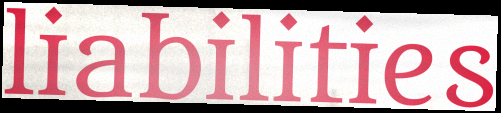
liabilities